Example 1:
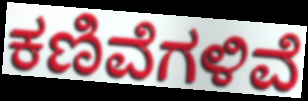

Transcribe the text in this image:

ಕಣಿವೆಗಳಿವೆ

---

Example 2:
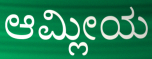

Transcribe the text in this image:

ಆಮ್ಲೀಯ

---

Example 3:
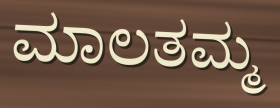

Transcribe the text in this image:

ಮಾಲತಮ್ಮ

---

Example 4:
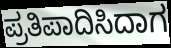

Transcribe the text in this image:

ಪ್ರತಿಪಾದಿಸಿದಾಗ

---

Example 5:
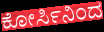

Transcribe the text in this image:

ಕೋರ್ಸಿನಿಂದ